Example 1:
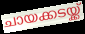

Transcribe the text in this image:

ചായക്കടയ്ക്ക്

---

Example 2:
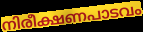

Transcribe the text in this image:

നിരീക്ഷണപാടവം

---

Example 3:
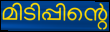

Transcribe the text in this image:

മിടിപ്പിന്റെ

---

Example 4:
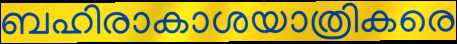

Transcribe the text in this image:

ബഹിരാകാശയാത്രികരെ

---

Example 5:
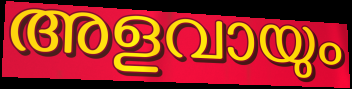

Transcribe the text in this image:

അളവായും